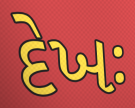
દેખઃ